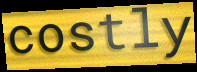
costly